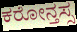
ಕರೋನ್ತಸ್ಸ